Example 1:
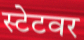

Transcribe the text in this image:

स्टेटवर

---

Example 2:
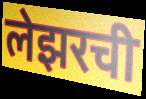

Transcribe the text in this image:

लेझरची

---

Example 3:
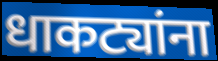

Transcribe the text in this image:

धाकट्यांना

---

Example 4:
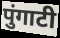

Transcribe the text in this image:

पुंगाटी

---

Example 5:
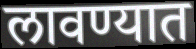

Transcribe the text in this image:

लावण्यात